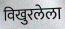
विखुरलेला